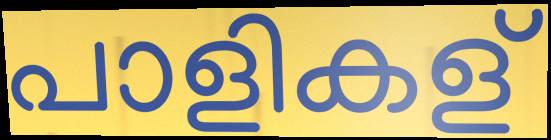
പാളികള്